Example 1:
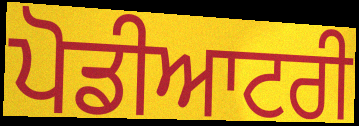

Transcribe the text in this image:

ਪੋਡੀਆਟਰੀ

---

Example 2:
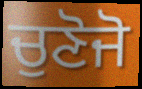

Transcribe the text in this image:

ਚੁਣੋਜੋ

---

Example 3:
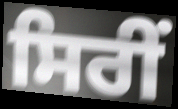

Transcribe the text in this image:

ਸਿਰੀਂ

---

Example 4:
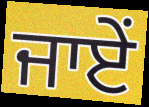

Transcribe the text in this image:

ਜਾਏਂ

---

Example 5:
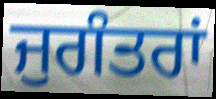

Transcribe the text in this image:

ਜੁਗੰਤਰਾਂ